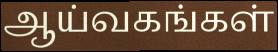
ஆய்வகங்கள்